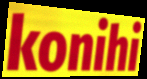
konihi